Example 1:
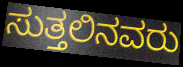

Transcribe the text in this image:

ಸುತ್ತಲಿನವರು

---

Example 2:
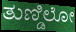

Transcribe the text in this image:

ತುಣ್ಡಿಲೋ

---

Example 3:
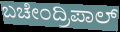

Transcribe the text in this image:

ಬಚೇಂದ್ರಿಪಾಲ್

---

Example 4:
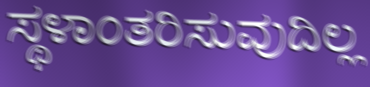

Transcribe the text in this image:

ಸ್ಥಳಾಂತರಿಸುವುದಿಲ್ಲ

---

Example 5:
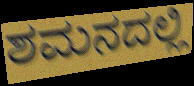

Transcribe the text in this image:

ಶಮನದಲ್ಲಿ